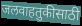
जलवाहतुकीसाठी